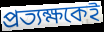
প্রত্যক্ষকেই